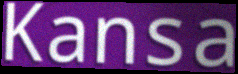
Kansa